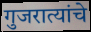
गुजरात्यांचे